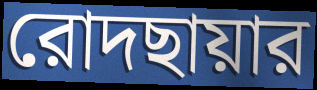
রোদছায়ার